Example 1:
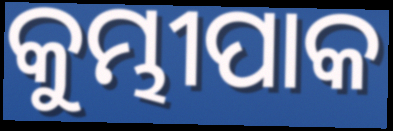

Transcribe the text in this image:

କୁମ୍ଭୀପାକ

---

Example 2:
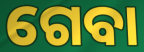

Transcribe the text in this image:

ଗେବା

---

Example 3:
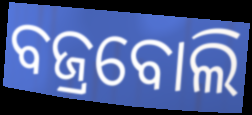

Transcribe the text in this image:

ବଜ୍ରବୋଲି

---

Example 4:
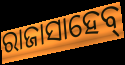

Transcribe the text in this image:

ରାଜାସାହେବ୍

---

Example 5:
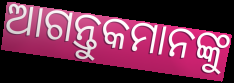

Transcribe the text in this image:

ଆଗନ୍ତୁକମାନଙ୍କୁ